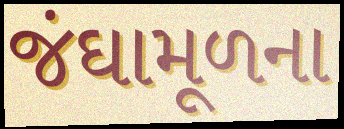
જંઘામૂળના